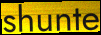
shunte